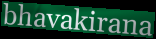
bhavakirana